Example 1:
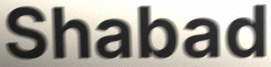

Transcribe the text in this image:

Shabad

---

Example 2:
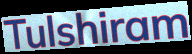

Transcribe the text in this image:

Tulshiram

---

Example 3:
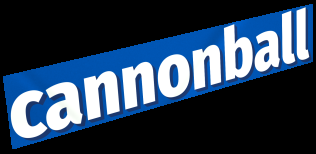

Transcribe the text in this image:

cannonball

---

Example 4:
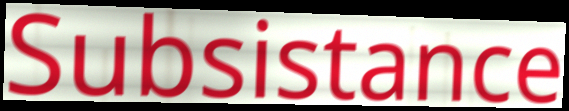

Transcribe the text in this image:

Subsistance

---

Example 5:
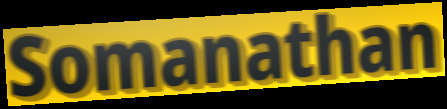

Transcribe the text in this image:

Somanathan